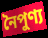
নৈপুণ্য